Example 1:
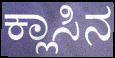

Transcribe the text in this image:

ಕ್ಲಾಸಿನ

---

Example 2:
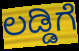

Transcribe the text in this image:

ಲಡ್ಡಿಗೆ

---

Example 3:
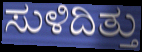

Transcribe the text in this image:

ಸುಳಿದಿತ್ತು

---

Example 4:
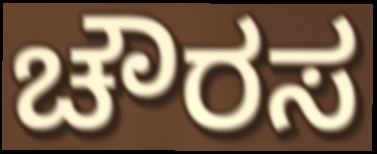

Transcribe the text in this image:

ಚೌರಸ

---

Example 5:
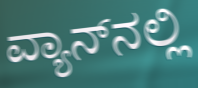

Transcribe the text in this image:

ವ್ಯಾನ್‌ನಲ್ಲಿ